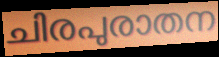
ചിരപുരാതന